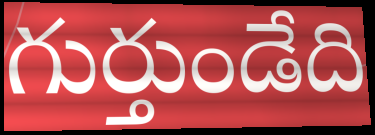
గుర్తుండేది